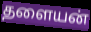
தளையன்